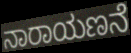
ನಾರಾಯಣನೆ